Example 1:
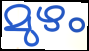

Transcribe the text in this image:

മുഴം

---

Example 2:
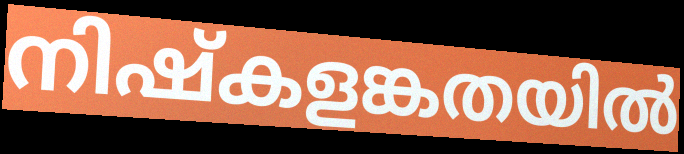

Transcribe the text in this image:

നിഷ്കളങ്കതയിൽ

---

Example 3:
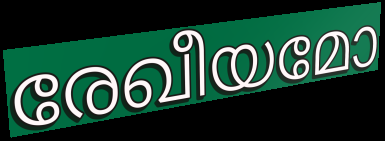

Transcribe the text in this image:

രേഖീയമോ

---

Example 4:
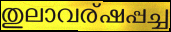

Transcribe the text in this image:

തുലാവര്ഷപ്പച്ച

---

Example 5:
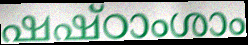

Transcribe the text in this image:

ഷഷ്ഠാംശാം